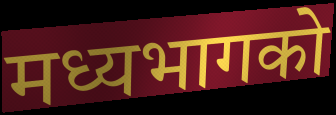
मध्यभागको